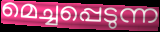
മെച്ചപ്പെടുന്ന